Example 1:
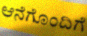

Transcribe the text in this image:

ಆನೆಗೊಂದಿಗೆ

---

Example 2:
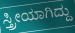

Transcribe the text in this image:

ಸ್ತ್ರೀಯಾಗಿದ್ದು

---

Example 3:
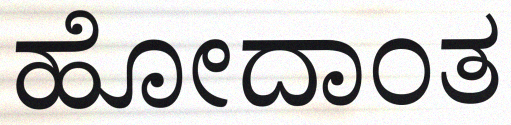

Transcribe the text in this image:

ಹೋದಾಂತ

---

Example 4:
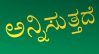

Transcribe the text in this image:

ಅನ್ನಿಸುತ್ತದೆ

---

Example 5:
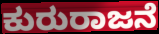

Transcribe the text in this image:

ಕುರುರಾಜನೆ